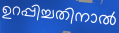
ഉറപ്പിച്ചതിനാൽ